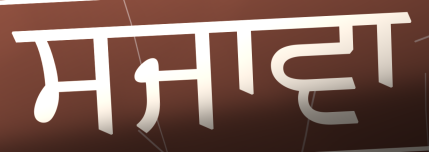
ਸਜਾਵਾ